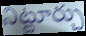
నిట్టూర్చు